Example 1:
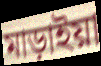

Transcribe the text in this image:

মাড়াইয়া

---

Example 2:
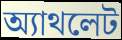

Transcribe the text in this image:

অ্যাথলেট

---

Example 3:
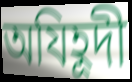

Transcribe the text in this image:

অযিহূদী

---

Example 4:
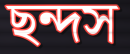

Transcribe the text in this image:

ছন্দস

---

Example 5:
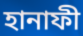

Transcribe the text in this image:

হানাফী